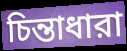
চিন্তাধারা